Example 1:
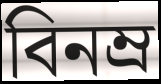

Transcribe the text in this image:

বিনম্ৰ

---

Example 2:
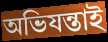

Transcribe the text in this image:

অভিযন্তাই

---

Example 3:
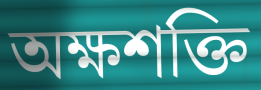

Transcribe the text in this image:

অক্ষশক্তি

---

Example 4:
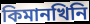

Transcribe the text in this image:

কিমানখিনি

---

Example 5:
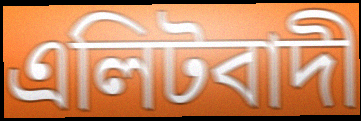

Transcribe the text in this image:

এলিটবাদী